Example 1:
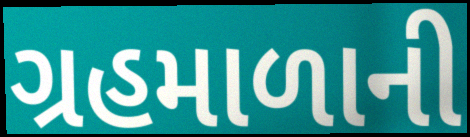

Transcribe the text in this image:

ગ્રહમાળાની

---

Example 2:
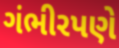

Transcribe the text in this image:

ગંભીરપણે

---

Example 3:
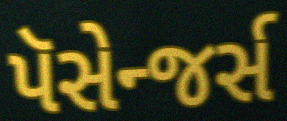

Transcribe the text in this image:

પૅસેન્જર્સ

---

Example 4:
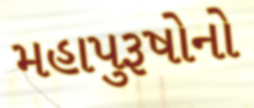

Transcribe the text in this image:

મહાપુરૂષોનો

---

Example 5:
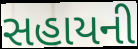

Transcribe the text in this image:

સહાયની